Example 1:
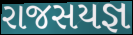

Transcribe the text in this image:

રાજસયજ્ઞ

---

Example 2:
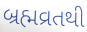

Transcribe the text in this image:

બ્રહ્મવ્રતથી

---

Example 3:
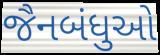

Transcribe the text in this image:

જૈનબંધુઓ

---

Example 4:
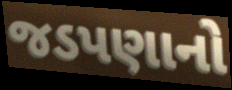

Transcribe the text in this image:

જડપણાનો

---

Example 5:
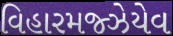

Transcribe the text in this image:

વિહારમજ્ઝેયેવ